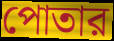
পোতার